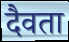
दैवता